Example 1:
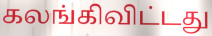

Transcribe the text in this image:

கலங்கிவிட்டது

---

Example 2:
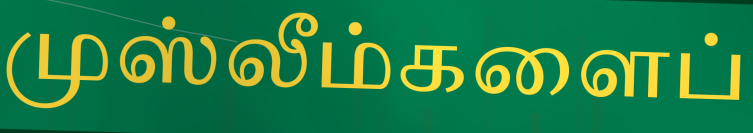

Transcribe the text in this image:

முஸ்லீம்களைப்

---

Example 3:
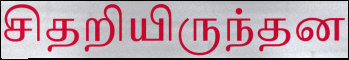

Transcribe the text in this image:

சிதறியிருந்தன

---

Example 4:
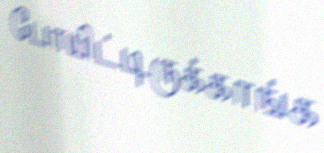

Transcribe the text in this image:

போயிட்டிருக்காங்க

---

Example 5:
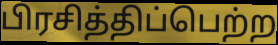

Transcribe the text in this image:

பிரசித்திப்பெற்ற